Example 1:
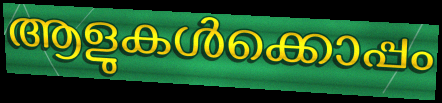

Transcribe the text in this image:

ആളുകൾക്കൊപ്പം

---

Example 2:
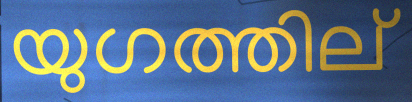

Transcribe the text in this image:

യുഗത്തില്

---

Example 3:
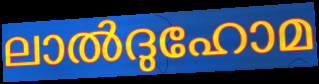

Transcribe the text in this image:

ലാൽദുഹോമ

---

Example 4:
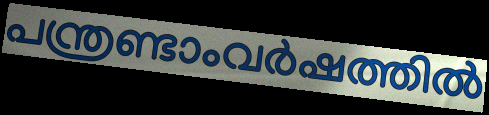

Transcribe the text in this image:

പന്ത്രണ്ടാംവർഷത്തിൽ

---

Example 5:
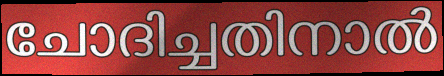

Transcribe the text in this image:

ചോദിച്ചതിനാൽ